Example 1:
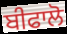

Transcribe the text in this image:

ਬੀਫਾਲੋ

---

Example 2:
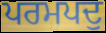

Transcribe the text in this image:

ਪਰਮਪਦੁ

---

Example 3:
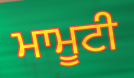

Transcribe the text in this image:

ਮਾਮੂਟੀ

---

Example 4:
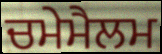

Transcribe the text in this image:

ਚਮੇਮੈਲਮ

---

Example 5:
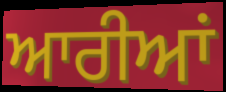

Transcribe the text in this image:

ਆਰੀਆਂ